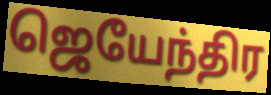
ஜெயேந்திர